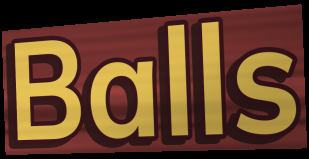
Balls